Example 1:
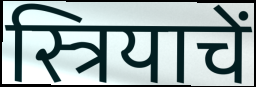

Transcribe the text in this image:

स्त्रियाचें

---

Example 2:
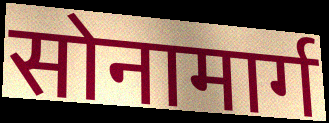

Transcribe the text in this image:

सोनामार्ग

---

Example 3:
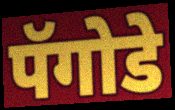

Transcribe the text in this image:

पॅगोडे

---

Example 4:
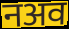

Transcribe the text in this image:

नअव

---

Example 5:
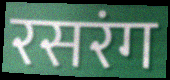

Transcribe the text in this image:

रसरंग